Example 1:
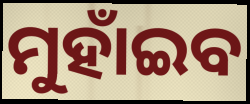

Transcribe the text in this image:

ମୁହାଁଇବ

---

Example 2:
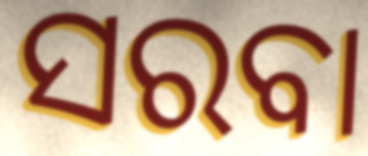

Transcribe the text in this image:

ସରବା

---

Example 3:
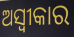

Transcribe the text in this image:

ଅସ୍ବୀକାର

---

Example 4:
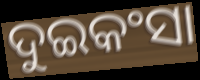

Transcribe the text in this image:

ଦୁଇକଂସା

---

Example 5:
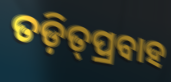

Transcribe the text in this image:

ତଡ଼ିତ୍‌ପ୍ରବାହ